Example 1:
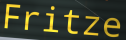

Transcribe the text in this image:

Fritze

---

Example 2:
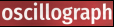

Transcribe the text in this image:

oscillograph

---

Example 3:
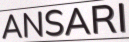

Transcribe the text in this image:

ANSARI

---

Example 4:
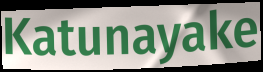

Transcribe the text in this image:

Katunayake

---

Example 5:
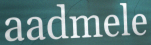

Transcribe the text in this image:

aadmele